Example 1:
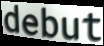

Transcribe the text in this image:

debut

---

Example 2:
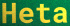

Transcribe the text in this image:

Heta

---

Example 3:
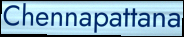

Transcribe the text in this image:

Chennapattana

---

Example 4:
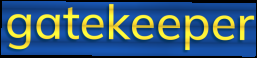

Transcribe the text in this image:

gatekeeper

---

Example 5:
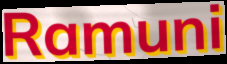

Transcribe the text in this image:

Ramuni